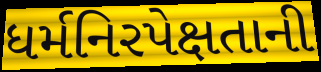
ધર્મનિરપેક્ષતાની